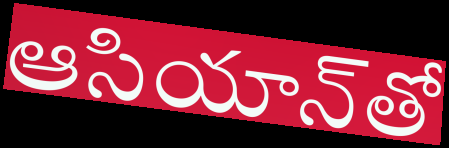
ఆసియాన్‌తో